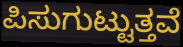
ಪಿಸುಗುಟ್ಟುತ್ತವೆ